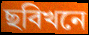
ছবিখনে